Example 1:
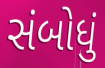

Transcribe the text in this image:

સંબોધું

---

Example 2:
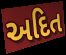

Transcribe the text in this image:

અદિત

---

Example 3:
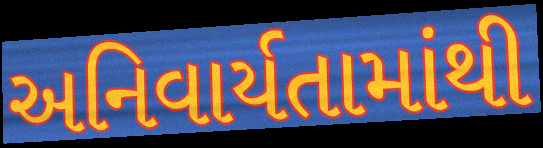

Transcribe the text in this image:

અનિવાર્યતામાંથી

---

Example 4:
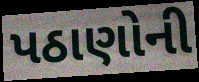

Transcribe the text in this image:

પઠાણોની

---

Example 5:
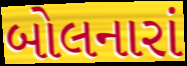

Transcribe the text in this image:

બોલનારાં